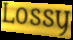
Lossy